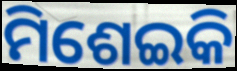
ମିଶେଇକି